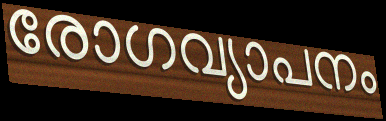
രോഗവ്യാപനം